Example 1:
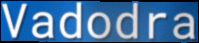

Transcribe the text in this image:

Vadodra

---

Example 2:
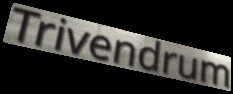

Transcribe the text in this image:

Trivendrum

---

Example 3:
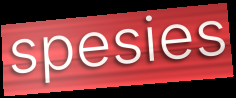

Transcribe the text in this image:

spesies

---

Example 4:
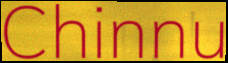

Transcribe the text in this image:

Chinnu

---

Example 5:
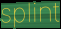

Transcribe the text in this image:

splint